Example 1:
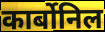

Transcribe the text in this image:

कार्बोनिल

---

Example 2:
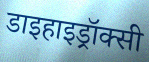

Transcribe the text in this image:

डाइहाइड्रॉक्सी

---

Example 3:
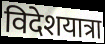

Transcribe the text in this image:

विदेशयात्रा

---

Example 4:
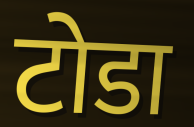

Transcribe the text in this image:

टोडा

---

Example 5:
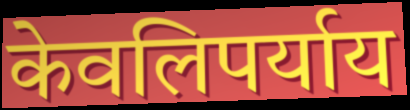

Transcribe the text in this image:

केवलिपर्याय